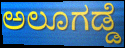
ಅಲೂಗಡ್ಡೆ